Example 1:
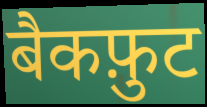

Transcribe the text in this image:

बैकफ़ुट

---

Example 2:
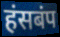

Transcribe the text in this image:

हंसबंप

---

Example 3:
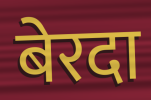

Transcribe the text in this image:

बेरदा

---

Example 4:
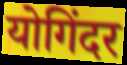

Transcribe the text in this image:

योगिंदर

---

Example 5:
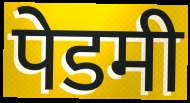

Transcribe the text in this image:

पेडमी